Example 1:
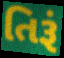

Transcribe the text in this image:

તિરૂં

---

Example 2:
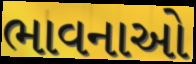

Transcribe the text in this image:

ભાવનાઓ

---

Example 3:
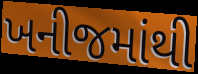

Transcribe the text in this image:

ખનીજમાંથી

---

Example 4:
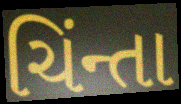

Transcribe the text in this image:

ચિંન્તા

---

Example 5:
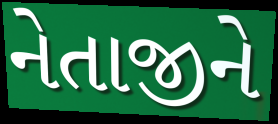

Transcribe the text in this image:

નેતાજીને